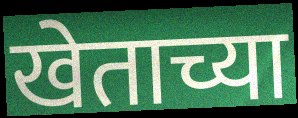
खेताच्या